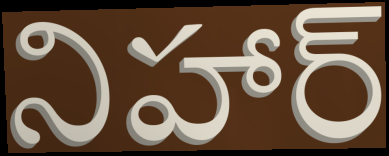
నిహార్